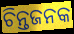
ଚିନ୍ତଜନକ